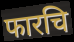
फारचि